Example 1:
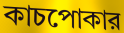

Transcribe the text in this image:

কাচপোকার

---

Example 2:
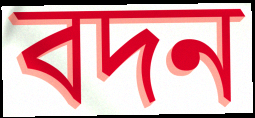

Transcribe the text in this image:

বদন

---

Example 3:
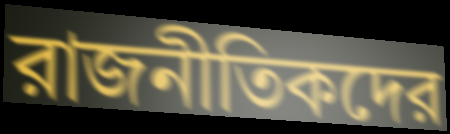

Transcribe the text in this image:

রাজনীতিকদের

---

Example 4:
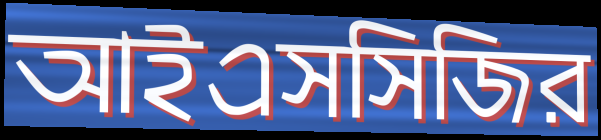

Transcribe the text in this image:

আইএসসিজির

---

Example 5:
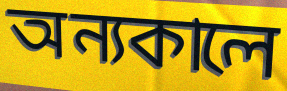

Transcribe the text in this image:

অন্যকালে